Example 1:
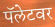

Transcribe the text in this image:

पॅलेटवर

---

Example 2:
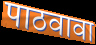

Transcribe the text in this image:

पाठवावा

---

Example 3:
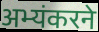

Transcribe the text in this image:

अभ्यंकरने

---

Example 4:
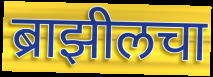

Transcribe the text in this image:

ब्राझीलचा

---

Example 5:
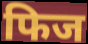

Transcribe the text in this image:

फिज